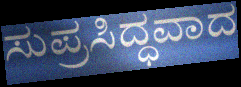
ಸುಪ್ರಸಿದ್ಧವಾದ